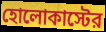
হোলোকাস্টের